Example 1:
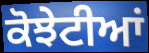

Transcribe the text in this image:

ਕੋਝੇਟੀਆਂ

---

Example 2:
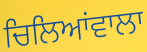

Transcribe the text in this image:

ਚਿਲਿਆਂਵਾਲਾ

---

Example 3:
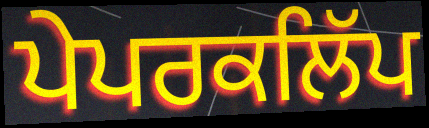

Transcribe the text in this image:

ਪੇਪਰਕਲਿੱਪ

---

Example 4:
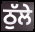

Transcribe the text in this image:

ਠੁੱਲੇ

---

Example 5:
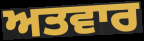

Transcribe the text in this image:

ਅਤਵਾਰ